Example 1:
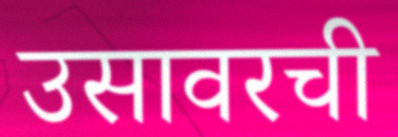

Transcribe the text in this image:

उसावरची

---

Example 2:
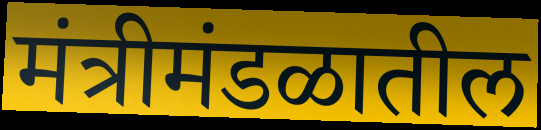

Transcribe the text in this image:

मंत्रीमंडळातील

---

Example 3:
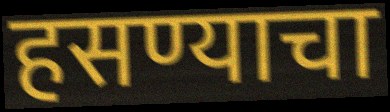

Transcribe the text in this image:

हसण्याचा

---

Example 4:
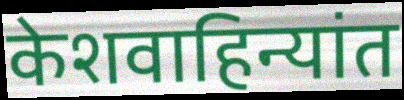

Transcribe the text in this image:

केशवाहिन्यांत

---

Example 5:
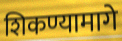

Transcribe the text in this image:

शिकण्यामागे